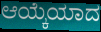
ಆಯ್ಕೆಯಾದ